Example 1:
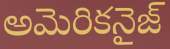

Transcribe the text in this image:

అమెరికనైజ్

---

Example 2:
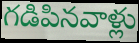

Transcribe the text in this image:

గడిపినవాళ్లు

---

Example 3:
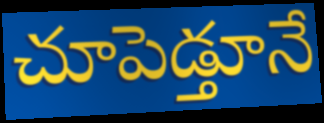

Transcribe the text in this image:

చూపెడ్తూనే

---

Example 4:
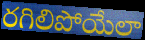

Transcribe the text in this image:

రగిలిపోయేలా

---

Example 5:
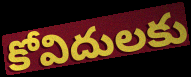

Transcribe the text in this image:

కోవిదులకు